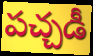
పచ్చడీ